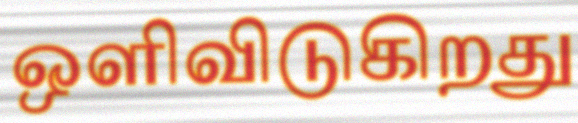
ஒளிவிடுகிறது